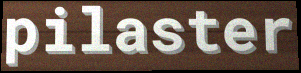
pilaster